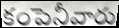
కంపెనీవారు